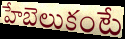
హేబెలుకంటే